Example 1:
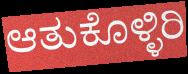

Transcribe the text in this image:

ಆತುಕೊಳ್ಳಿರಿ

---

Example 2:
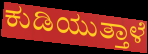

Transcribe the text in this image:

ಕುಡಿಯುತ್ತಾಳೆ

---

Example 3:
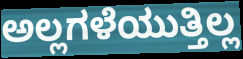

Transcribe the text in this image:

ಅಲ್ಲಗಳೆಯುತ್ತಿಲ್ಲ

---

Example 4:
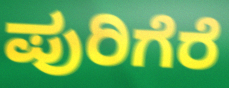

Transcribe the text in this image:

ಪುರಿಗೆರೆ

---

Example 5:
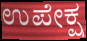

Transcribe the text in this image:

ಉಪೇಕ್ಷ